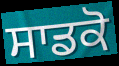
ਸਾਡਕੋ